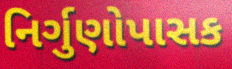
નિર્ગુણોપાસક